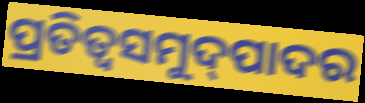
ପ୍ରତିତ୍ଵସମୁଦ୍‌ପାଦର